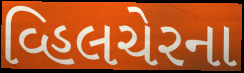
વ્હિલચેરના